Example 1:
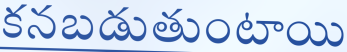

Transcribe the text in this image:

కనబడుతుంటాయి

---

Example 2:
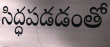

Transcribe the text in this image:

సిద్ధపడడంతో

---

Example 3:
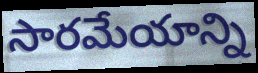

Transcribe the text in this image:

సారమేయాన్ని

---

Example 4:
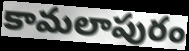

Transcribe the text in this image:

కామలాపురం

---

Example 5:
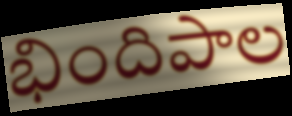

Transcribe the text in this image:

భిందిపాల